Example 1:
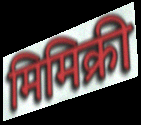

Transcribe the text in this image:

मिमिक्री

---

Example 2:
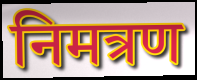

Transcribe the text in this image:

निमत्रण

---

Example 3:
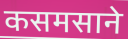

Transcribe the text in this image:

कसमसाने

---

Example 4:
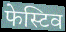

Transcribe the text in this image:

फेस्टिव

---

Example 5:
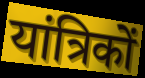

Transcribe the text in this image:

यांत्रिकों